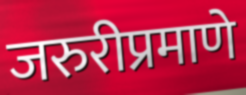
जरुरीप्रमाणे